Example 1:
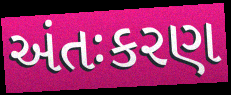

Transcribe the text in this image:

અંતઃકરણ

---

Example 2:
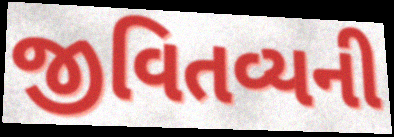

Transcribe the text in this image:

જીવિતવ્યની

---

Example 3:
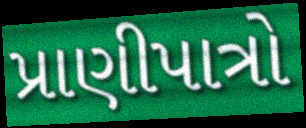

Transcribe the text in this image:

પ્રાણીપાત્રો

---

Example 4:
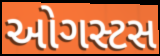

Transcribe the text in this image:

ઓગસ્ટસ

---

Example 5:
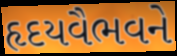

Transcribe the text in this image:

હૃદયવૈભવને